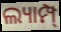
ଲ୍ୟାମ୍ପ୍